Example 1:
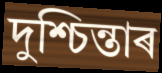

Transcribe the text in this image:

দুশ্চিন্তাৰ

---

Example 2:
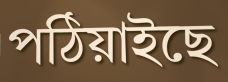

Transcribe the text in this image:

পঠিয়াইছে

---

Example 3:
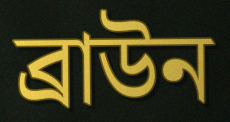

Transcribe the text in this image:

ব্ৰাউন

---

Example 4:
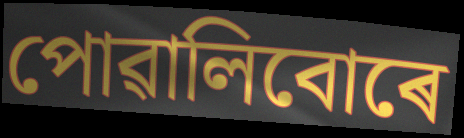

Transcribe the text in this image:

পোৱালিবোৰে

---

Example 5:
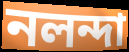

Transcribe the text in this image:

নলন্দা